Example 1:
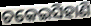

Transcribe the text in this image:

ଚକେଇସିହାଣି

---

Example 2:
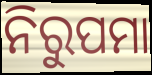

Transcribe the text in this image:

ନିରୁପମା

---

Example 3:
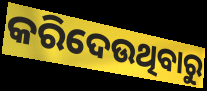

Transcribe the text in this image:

କରିଦେଉଥିବାରୁ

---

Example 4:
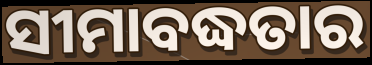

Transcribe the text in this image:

ସୀମାବଦ୍ଧତାର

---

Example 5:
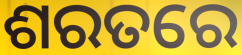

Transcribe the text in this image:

ଶରତରେ